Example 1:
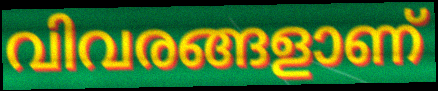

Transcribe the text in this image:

വിവരങ്ങളാണ്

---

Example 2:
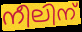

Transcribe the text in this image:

നീലിന്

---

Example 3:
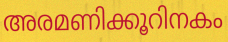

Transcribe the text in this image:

അരമണിക്കൂറിനകം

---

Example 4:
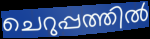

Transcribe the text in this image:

ചെറുപ്പത്തിൽ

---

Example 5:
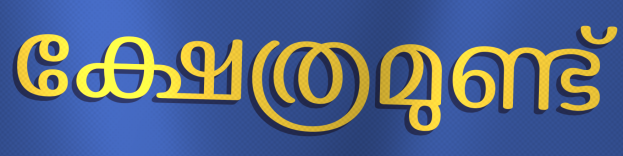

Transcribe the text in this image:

ക്ഷേത്രമുണ്ട്